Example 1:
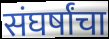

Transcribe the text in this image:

संघर्षांचा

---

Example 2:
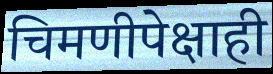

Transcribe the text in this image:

चिमणीपेक्षाही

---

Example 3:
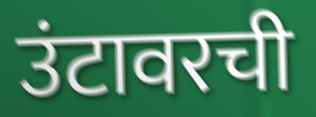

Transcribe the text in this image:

उंटावरची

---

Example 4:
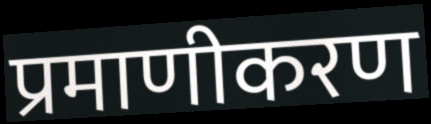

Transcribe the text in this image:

प्रमाणीकरण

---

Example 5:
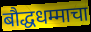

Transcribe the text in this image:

बौद्धधम्माचा